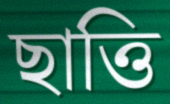
ছাত্তি